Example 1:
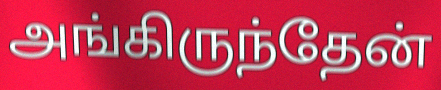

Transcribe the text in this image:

அங்கிருந்தேன்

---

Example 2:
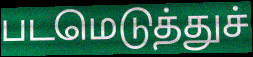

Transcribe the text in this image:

படமெடுத்துச்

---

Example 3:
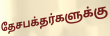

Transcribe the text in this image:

தேசபக்தர்களுக்கு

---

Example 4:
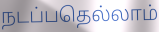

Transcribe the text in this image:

நடப்பதெல்லாம்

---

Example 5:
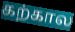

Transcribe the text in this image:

கற்கால